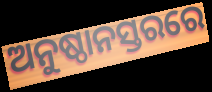
ଅନୁଷ୍ଠାନସ୍ତରରେ